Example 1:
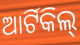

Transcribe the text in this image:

ଆର୍ଟିକିଲ୍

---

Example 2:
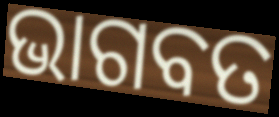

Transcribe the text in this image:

ଭାଗବତ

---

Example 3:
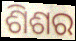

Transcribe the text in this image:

ଶିଶର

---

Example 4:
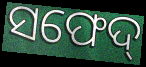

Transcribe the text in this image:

ସଫେଦ୍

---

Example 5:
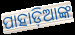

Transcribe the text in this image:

ପାହାଡ଼ିଆଙ୍କ